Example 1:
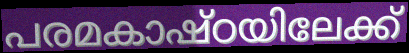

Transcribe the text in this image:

പരമകാഷ്ഠയിലേക്ക്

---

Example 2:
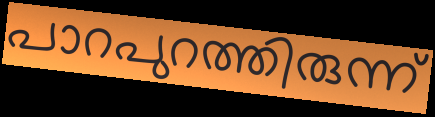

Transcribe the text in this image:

പാറപുറത്തിരുന്ന്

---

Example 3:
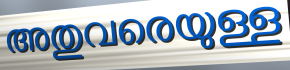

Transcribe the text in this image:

അതുവരെയുള്ള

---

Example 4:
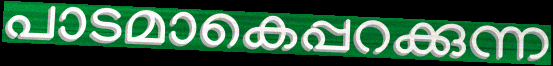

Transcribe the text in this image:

പാടമാകെപ്പറക്കുന്ന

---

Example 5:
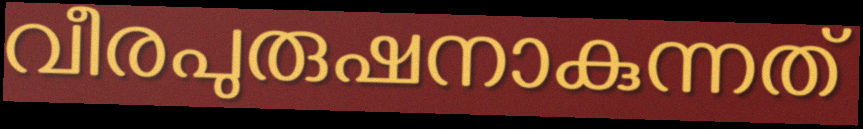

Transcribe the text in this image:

വീരപുരുഷനാകുന്നത്